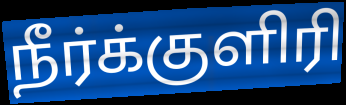
நீர்க்குளிரி